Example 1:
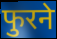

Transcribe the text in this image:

फुरने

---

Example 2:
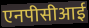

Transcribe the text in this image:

एनपीसीआई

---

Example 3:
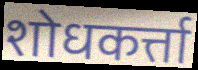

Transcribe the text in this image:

शोधकर्त्ता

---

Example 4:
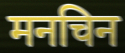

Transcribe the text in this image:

मनचिन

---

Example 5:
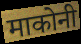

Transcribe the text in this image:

माकोनी